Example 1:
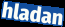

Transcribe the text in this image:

hladan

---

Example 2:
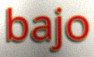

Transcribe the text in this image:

bajo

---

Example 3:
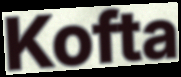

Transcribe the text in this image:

Kofta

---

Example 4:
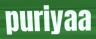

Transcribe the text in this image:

puriyaa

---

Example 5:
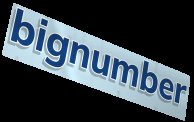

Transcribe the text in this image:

bignumber